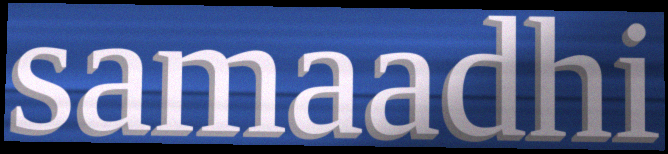
samaadhi